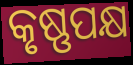
କୃଷ୍ଣପକ୍ଷ